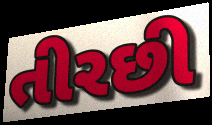
તીરછી